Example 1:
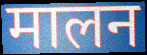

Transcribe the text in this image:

मालन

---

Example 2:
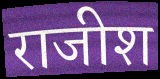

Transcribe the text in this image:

राजीश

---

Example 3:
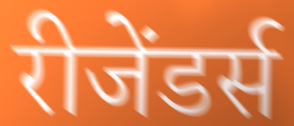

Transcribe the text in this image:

रीजेंडर्स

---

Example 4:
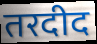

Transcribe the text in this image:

तरदीद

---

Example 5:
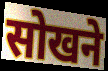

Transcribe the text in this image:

सोखने